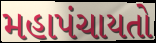
મહાપંચાયતો